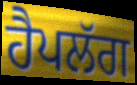
ਹੈਪਲੱਗ